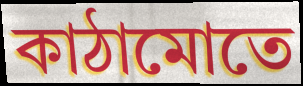
কাঠামোতে